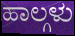
ಹಾಲ್ಗಳು